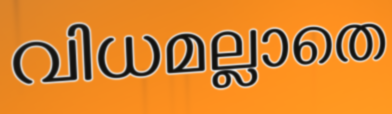
വിധമല്ലാതെ